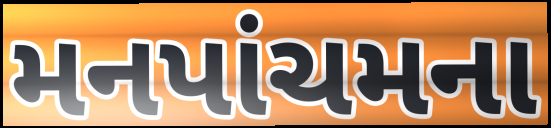
મનપાંચમના